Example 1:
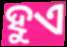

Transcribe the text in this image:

ହୁଏ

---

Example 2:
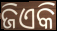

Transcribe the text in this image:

ଜିଏକି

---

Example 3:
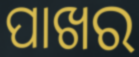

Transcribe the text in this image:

ପାଖର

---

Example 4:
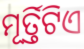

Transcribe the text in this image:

ମୂର୍ତ୍ତିଟିଏ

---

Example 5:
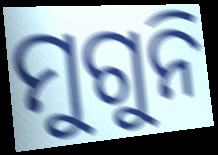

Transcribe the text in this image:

ମୁଗୁନି